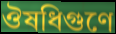
ঔষধিগুণে